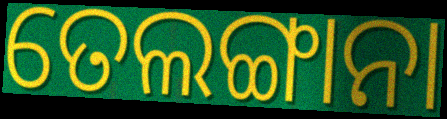
ତେଲଙ୍ଗାନା